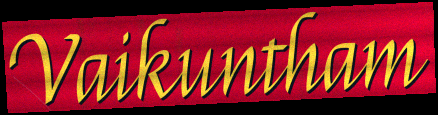
Vaikuntham